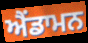
ਐਂਡਾਮਨ